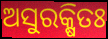
ଅସୁରକ୍ଷିତଃ